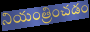
నియంత్రించడం